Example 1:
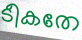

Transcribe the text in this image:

ടീകതേ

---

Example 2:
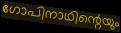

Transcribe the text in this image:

ഗോപിനാഥിന്റെയും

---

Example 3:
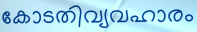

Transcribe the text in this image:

കോടതിവ്യവഹാരം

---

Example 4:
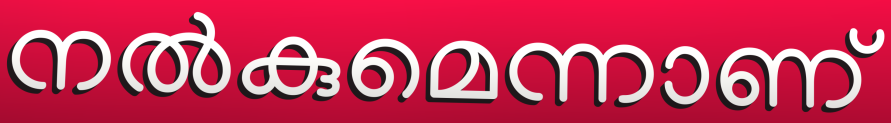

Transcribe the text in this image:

നൽകുമെന്നാണ്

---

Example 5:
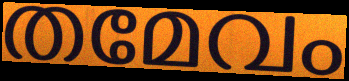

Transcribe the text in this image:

തമേവം